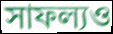
সাফল্যও